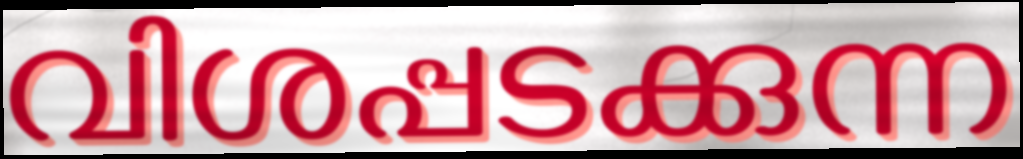
വിശപ്പടക്കുന്ന